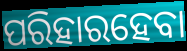
ପରିହାରହେବା